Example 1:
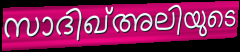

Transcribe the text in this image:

സാദിഖ്അലിയുടെ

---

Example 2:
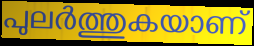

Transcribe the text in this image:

പുലർത്തുകയാണ്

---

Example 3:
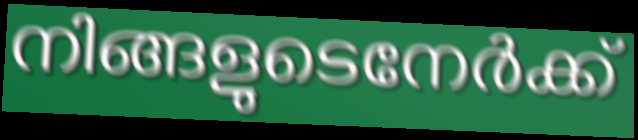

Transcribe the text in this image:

നിങ്ങളുടെനേർക്ക്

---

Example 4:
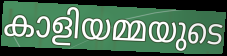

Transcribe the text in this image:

കാളിയമ്മയുടെ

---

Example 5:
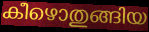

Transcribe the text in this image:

കീഴൊതുങ്ങിയ